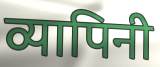
व्यापिनी